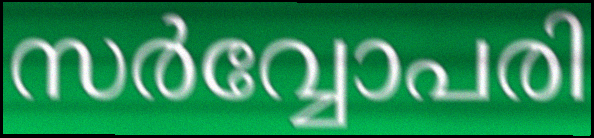
സർവ്വോപരി